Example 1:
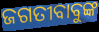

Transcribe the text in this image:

ଜଗତୀବାବୁଙ୍କ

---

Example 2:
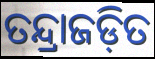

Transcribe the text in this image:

ତନ୍ଦ୍ରାଜଡ଼ିତ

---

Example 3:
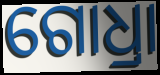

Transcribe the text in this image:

ଗୋଧ୍ରା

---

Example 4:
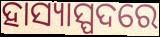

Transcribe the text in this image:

ହାସ୍ୟାସ୍ପଦରେ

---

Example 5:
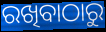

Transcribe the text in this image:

ରଖିବାଠାରୁ